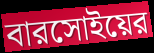
বারসোইয়ের